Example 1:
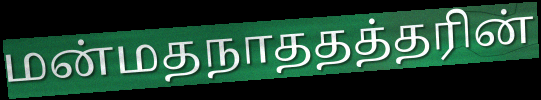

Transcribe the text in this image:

மன்மதநாததத்தரின்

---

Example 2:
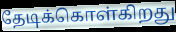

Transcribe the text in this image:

தேடிக்கொள்கிறது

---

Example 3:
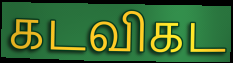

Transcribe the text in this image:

கடவிகட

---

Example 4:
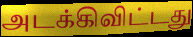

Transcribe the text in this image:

அடக்கிவிட்டது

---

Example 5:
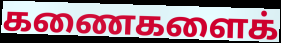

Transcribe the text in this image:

கணைகளைக்